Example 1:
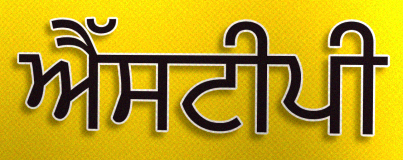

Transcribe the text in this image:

ਐੱਸਟੀਪੀ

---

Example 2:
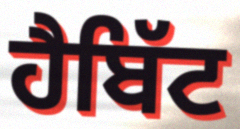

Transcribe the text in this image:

ਹੈਬਿੱਟ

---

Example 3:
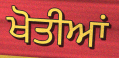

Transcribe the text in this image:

ਖੋਤੀਆਂ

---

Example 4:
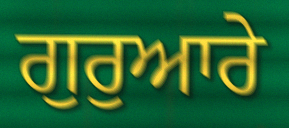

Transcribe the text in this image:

ਗੁਰੁਆਰੇ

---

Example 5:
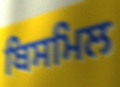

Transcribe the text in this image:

ਬਿਸਮਿਲ